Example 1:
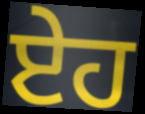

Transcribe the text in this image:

ਏਹ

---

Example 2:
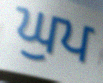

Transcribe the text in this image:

ਘੁਪ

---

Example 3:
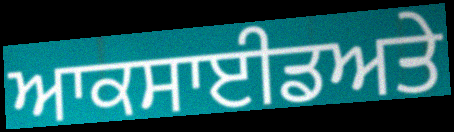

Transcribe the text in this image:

ਆਕਸਾਈਡਅਤੇ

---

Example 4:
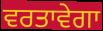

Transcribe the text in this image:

ਵਰਤਾਵੇਗਾ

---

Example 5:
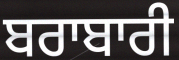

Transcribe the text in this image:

ਬਰਾਬਾਰੀ